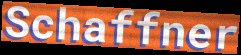
Schaffner